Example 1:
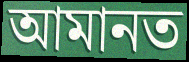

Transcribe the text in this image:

আমানত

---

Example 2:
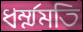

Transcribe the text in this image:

ধর্ম্মমতি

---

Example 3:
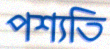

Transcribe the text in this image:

পশ্যতি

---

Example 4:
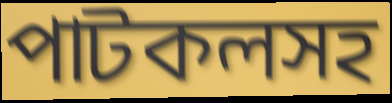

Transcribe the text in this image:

পাটকলসহ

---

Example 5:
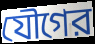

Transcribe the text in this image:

যৌগের